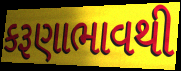
કરૂણાભાવથી